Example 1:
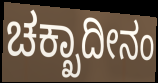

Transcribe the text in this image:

ಚಕ್ಖಾದೀನಂ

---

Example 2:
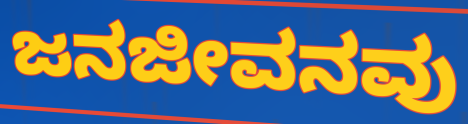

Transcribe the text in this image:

ಜನಜೀವನವು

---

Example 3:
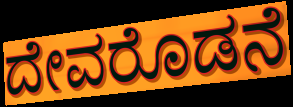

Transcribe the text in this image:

ದೇವರೊಡನೆ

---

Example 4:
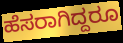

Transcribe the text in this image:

ಹೆಸರಾಗಿದ್ದರೂ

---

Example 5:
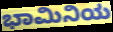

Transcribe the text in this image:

ಭಾಮಿನಿಯ